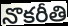
నొకరీతి